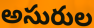
అసురుల